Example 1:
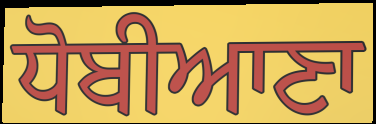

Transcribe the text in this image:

ਧੋਬੀਆਣਾ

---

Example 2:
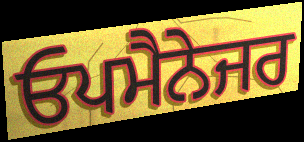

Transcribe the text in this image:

ਓਪਮੈਨੇਜਰ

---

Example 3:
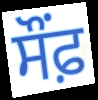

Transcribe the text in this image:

ਸੌਂਫ਼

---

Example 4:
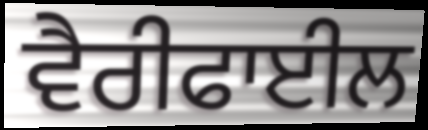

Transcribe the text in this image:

ਵੈਰੀਫਾਈਲ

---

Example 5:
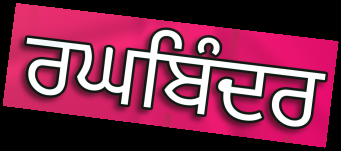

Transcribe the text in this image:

ਰਘਬਿੰਦਰ